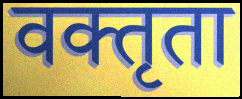
वक्तृता